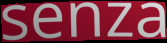
senza